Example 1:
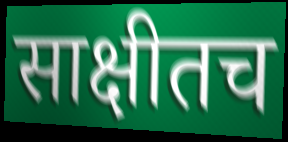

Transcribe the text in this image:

साक्षीतच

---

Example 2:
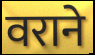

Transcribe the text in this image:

वराने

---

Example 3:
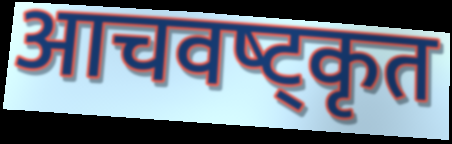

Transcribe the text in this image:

आचवष्ट्कृत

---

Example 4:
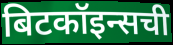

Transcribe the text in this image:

बिटकॉइन्सची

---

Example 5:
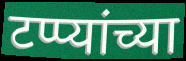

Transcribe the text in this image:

टप्प्यांच्या